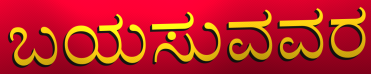
ಬಯಸುವವರ